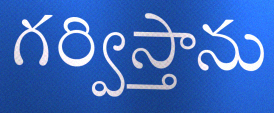
గర్విస్తాను